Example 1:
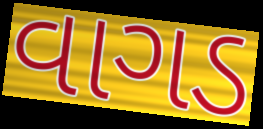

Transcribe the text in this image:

વાગડ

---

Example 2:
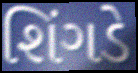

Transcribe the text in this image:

શિંગડે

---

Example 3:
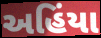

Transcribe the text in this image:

અહિંયા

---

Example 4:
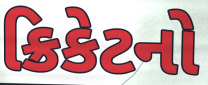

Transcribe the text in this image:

ક્રિકેટનો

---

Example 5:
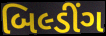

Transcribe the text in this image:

બિલ્ડીંગ